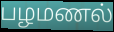
பழமணல்